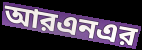
আরএনএর